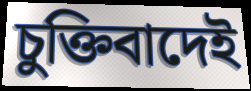
চুক্তিবাদেই